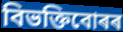
বিভক্তিবোৰৰ